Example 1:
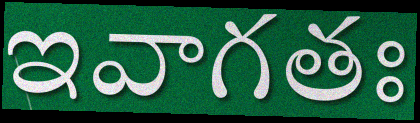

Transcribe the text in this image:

ఇవాగతః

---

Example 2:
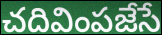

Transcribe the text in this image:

చదివింపజేసే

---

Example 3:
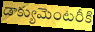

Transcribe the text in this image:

డాక్యుమెంటరీకి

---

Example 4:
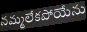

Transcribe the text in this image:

నమ్మలేకపోయేను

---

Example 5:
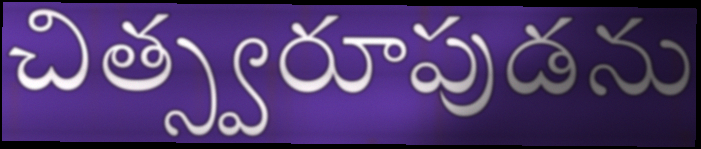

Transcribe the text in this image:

చిత్స్వరూపుడను